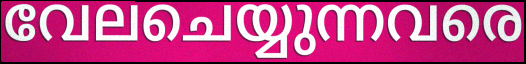
വേലചെയ്യുന്നവരെ